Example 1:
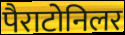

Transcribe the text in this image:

पैराटोनिलर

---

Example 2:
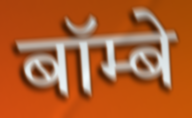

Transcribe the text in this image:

बॉम्बे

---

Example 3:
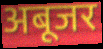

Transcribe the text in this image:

अबूजर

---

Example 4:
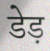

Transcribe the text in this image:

डेड़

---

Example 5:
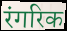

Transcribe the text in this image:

रंगरिक